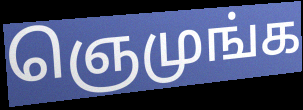
ஞெமுங்க